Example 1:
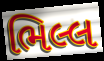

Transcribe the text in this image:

ભિલ્લ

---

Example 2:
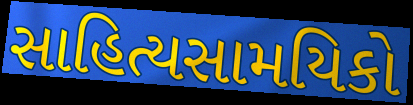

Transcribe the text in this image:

સાહિત્યસામયિકો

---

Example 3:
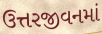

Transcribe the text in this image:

ઉત્તરજીવનમાં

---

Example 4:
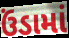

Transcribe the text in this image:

ઉંડામાં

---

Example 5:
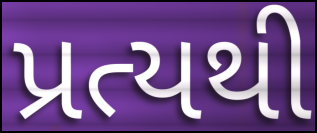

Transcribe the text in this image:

પ્રત્યથી